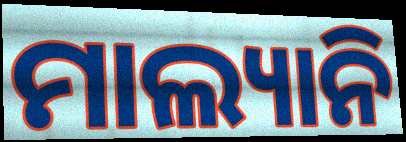
ମାଲ୍ୟାନି